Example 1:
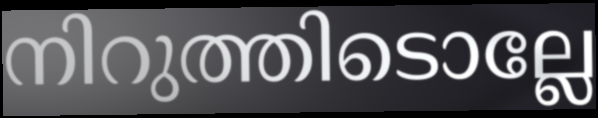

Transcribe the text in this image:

നിറുത്തിടൊല്ലേ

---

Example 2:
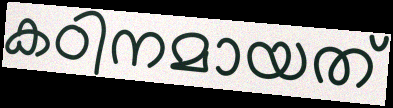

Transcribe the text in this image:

കഠിനമായത്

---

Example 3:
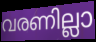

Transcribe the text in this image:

വരണില്ലാ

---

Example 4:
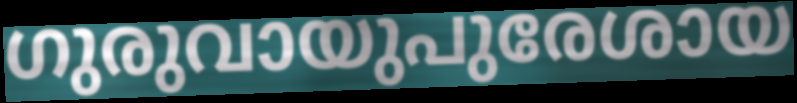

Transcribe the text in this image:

ഗുരുവായുപുരേശായ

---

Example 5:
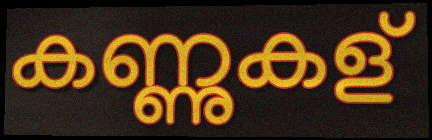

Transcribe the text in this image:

കണ്ണുകള്